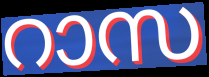
റാസ